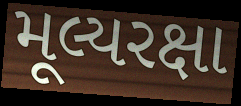
મૂલ્યરક્ષા